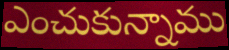
ఎంచుకున్నాము